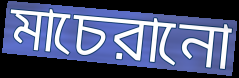
মাচেরানো